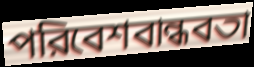
পরিবেশবান্ধবতা